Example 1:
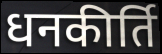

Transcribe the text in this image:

धनकीर्ति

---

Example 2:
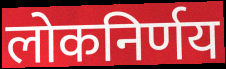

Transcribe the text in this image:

लोकनिर्णय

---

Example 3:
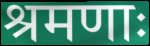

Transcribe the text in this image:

श्रमणाः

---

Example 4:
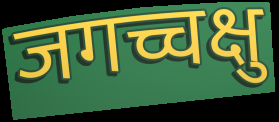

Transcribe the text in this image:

जगच्चक्षु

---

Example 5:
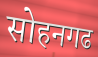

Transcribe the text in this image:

सोहनगढ